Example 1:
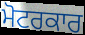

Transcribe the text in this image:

ਮੋਟਰਕਾਰ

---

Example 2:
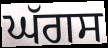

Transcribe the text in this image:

ਘੱਗਸ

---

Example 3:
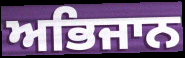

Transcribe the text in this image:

ਅਭਿਜਾਨ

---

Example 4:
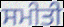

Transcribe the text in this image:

ਸਮੀਤੀ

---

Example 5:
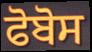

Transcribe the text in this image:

ਫੋਬੋਸ